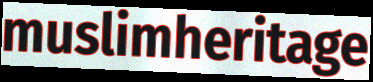
muslimheritage